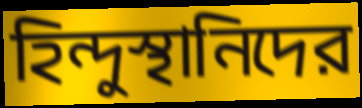
হিন্দুস্থানিদের